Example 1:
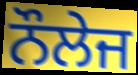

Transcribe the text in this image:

ਨੌਲੇਜ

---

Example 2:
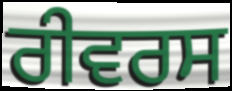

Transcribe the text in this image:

ਰੀਵਰਸ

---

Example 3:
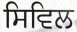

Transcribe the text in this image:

ਸਿਵਿਲ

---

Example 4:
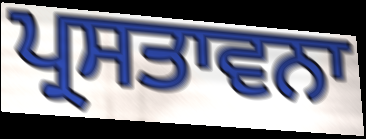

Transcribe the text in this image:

ਪ੍ਰਸਤਾਵਨਾ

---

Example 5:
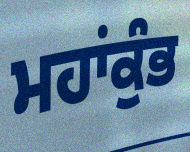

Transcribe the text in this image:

ਮਹਾਂਕੁੰਭ